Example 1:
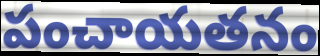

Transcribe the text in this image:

పంచాయతనం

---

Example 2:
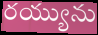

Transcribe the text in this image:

రయ్యును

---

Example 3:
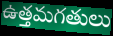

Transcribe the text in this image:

ఉత్తమగతులు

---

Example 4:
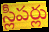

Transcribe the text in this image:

స్లీపర్లు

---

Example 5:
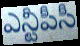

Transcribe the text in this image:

ఎన్టీపీసీ